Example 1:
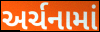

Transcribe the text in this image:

અર્ચનામાં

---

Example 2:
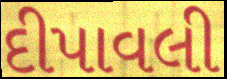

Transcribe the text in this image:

દીપાવલી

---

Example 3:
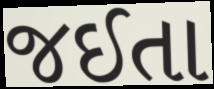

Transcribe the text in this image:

જઈતા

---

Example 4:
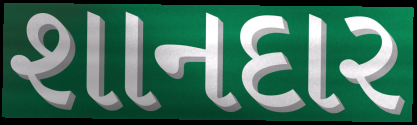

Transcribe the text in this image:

શાનદાર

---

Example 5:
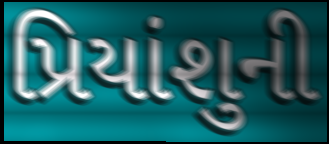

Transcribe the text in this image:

પ્રિયાંશુની